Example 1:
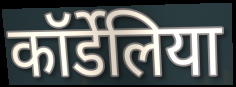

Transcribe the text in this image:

कॉर्डेलिया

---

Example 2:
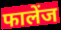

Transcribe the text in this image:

फालेंज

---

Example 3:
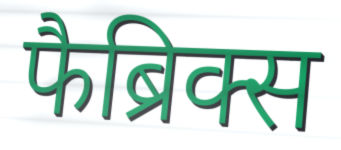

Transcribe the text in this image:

फैब्रिक्स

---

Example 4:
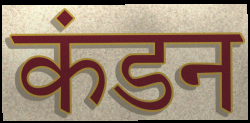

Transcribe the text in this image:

कंडन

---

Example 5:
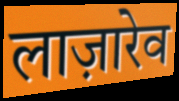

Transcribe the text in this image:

लाज़ारेव